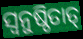
ସ୍ଵନୁଷ୍ଠିତାତ୍